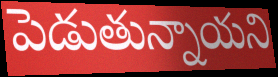
పెడుతున్నాయని